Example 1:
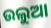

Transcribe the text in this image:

ଉଲୁଆ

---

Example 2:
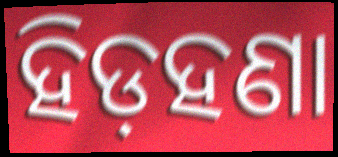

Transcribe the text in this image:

ହିଡ଼ହଣା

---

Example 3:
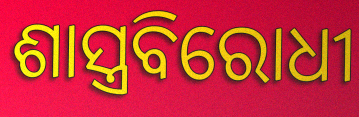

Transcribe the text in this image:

ଶାସ୍ତ୍ରବିରୋଧୀ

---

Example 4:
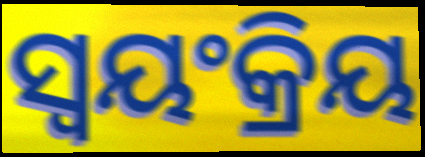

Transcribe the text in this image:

ସ୍ୱୟଂକ୍ରିୟ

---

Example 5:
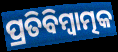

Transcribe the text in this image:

ପ୍ରତିବିମ୍ବାତ୍ମକ